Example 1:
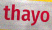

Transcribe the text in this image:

thayo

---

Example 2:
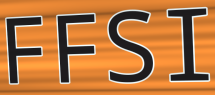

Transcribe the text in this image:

FFSI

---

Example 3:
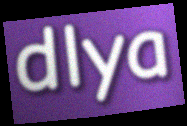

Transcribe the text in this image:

dlya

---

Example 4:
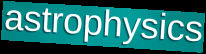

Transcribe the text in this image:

astrophysics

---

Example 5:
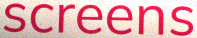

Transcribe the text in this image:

screens